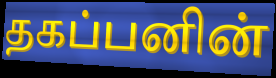
தகப்பனின்